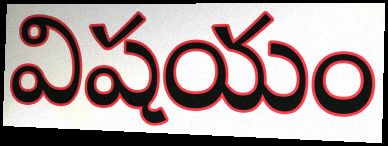
విషయం